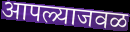
आपल्याजवळ